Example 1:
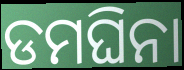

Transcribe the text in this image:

ଡମଘିନା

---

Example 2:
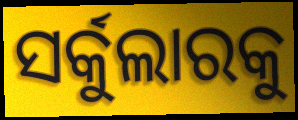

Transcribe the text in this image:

ସର୍କୁଲାରକୁ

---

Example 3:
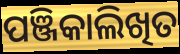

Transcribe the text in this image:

ପଞ୍ଜିକାଲିଖିତ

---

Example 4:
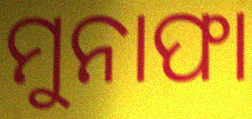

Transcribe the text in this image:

ମୁନାଫା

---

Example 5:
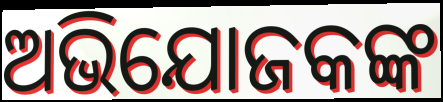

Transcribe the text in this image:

ଅଭିଯୋଜକଙ୍କ